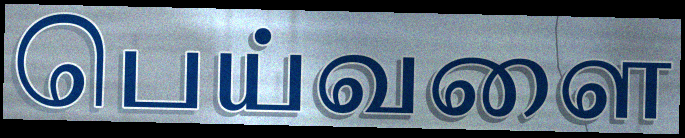
பெய்வளை